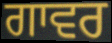
ਗਾਵਰ